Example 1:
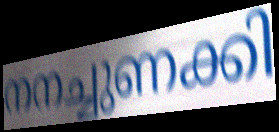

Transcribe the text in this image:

നനച്ചുണക്കി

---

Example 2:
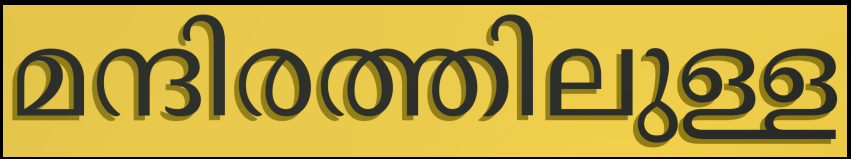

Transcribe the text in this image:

മന്ദിരത്തിലുള്ള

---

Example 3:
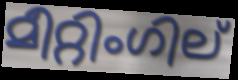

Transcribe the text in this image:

മീറ്റിംഗില്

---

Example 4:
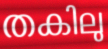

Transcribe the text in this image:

തകിലു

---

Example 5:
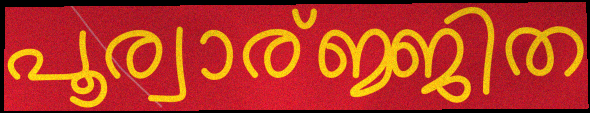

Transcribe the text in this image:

പൂര്വാര്ജ്ജിത